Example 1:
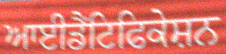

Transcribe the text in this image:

ਆਈਡੈਂਟਿਫਿਕੇਸ਼ਨ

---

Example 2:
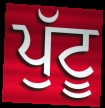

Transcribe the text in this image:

ਪੁੱਟੂ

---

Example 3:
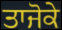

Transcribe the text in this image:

ਤਾਜੋਕੇ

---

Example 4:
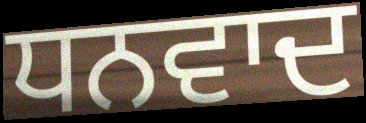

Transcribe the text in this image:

ਧਨਵਾਦ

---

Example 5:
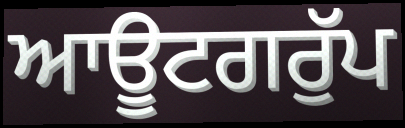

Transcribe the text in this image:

ਆਊਟਗਰੁੱਪ